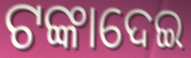
ଟଙ୍କାଦେଇ